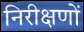
निरीक्षणों